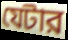
যেটার